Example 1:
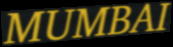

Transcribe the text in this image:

MUMBAI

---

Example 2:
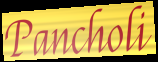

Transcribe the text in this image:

Pancholi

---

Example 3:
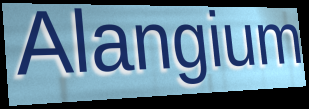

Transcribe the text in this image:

Alangium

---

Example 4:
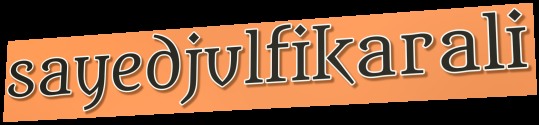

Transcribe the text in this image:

sayedjulfikarali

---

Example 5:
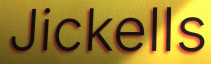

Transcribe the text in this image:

Jickells